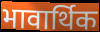
भावार्थिक